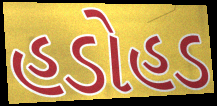
હડોહડ